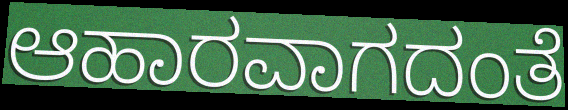
ಆಹಾರವಾಗದಂತೆ